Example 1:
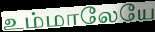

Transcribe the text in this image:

உம்மாலேயே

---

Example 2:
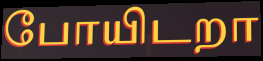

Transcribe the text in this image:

போயிடறா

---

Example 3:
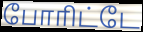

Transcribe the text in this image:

போரிட்டே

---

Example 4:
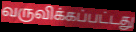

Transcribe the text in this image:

வருவிக்கப்பட்டது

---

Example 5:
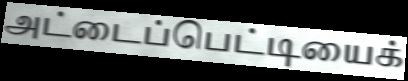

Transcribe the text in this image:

அட்டைப்பெட்டியைக்